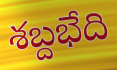
శబ్దభేది